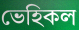
ভেহিকল